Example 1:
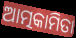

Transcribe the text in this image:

ଆତ୍ମକାମିତା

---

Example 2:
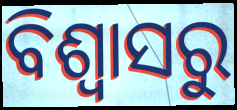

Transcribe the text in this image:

ବିଶ୍ବାସରୁ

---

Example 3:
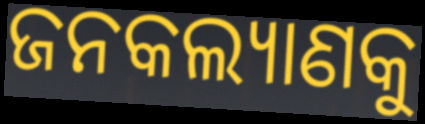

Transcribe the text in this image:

ଜନକଲ୍ୟାଣକୁ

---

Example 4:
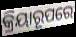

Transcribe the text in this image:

କ୍ରିୟାରୂପରେ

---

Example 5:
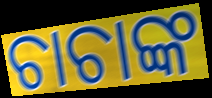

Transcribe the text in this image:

ଚାଚାଙ୍କ